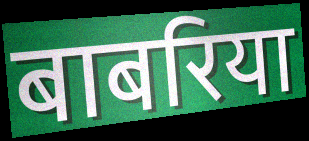
बाबरिया